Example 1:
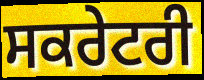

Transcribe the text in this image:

ਸਕਰੇਟਰੀ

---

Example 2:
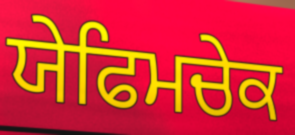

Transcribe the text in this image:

ਯੇਫਿਮਚੇਕ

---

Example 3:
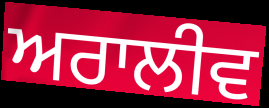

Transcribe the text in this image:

ਅਰਾਲੀਵ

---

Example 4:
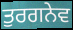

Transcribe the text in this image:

ਤੁਰਗਨੇਵ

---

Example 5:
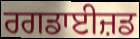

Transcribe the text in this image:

ਰਗਡਾਈਜ਼ਡ